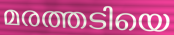
മരത്തടിയെ